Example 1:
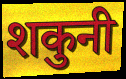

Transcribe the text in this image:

शकुनी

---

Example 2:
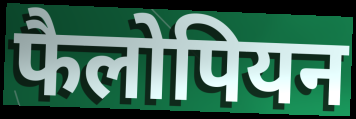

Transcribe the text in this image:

फैलोपियन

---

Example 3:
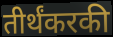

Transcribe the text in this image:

तीर्थंकरकी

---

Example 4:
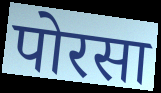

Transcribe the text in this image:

पोरसा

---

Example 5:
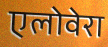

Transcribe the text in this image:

एलोवेरा